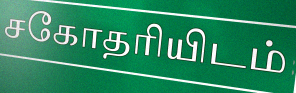
சகோதரியிடம்